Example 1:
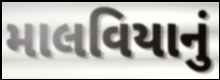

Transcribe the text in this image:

માલવિયાનું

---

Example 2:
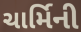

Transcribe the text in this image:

ચાર્મિની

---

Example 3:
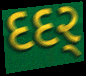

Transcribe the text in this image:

દદર્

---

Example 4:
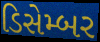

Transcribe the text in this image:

ડિસેમ્બર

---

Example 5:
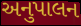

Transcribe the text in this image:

અનુપાલન